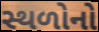
સ્થળોનો